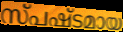
സ്പഷ്ടമായ